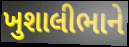
ખુશાલીભાને